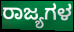
ರಾಜ್ಯಗಳ